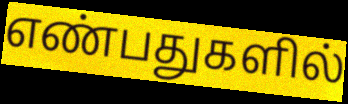
எண்பதுகளில்